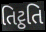
તિટ્ઠતિ